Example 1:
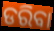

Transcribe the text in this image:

ଡରିବା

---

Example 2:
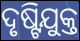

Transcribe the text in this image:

ଦୃଷ୍ଟିଯୁକ୍ତ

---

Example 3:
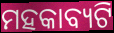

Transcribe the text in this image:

ମହକାବ୍ୟଟି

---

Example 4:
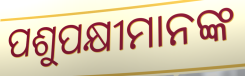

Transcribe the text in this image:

ପଶୁପକ୍ଷୀମାନଙ୍କ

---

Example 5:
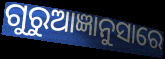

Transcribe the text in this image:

ଗୁରୁଆଜ୍ଞାନୁସାରେ